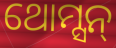
ଥୋମ୍ସନ୍